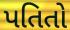
પતિતો